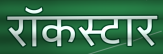
रॉकस्टार